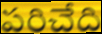
పరిచేది